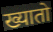
ख्यातो